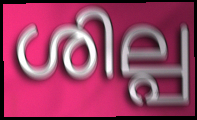
ശില്പ